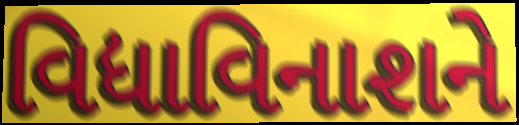
વિદ્યાવિનાશને